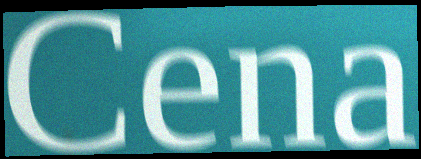
Cena